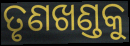
ତୃଣଖଣ୍ଡକୁ